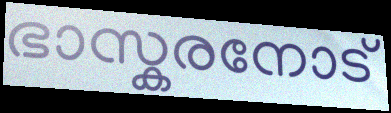
ഭാസ്കരനോട്